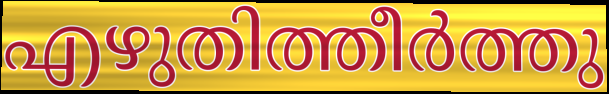
എഴുതിത്തീർത്തു